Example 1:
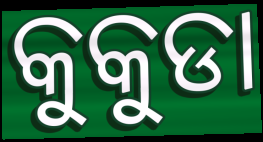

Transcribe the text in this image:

କୁକୁଡା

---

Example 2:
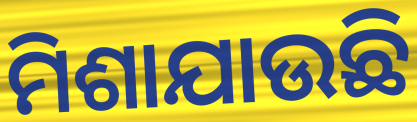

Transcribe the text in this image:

ମିଶାଯାଉଛି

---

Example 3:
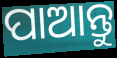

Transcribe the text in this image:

ପାଆନ୍ତୁ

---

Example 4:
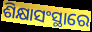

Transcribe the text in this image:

ଶିକ୍ଷାସଂସ୍ଥାରେ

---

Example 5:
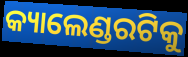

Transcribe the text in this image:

କ୍ୟାଲେଣ୍ଡରଟିକୁ